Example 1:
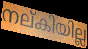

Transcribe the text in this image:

നല്കിയില്ല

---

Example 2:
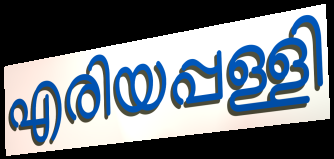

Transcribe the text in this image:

എരിയപ്പള്ളി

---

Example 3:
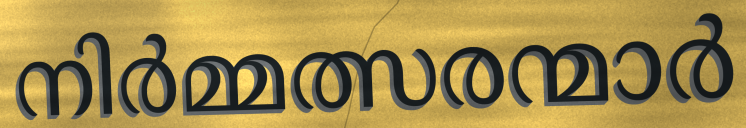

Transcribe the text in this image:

നിർമ്മത്സരന്മാർ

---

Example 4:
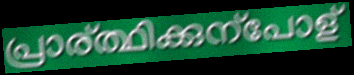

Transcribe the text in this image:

പ്രാര്ത്ഥിക്കുന്പോള്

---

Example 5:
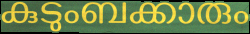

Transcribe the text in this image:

കുടുംബക്കാരും